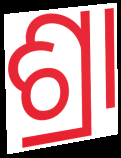
ଶ୍ରା